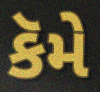
કૅમે